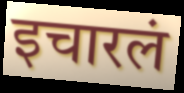
इचारलं